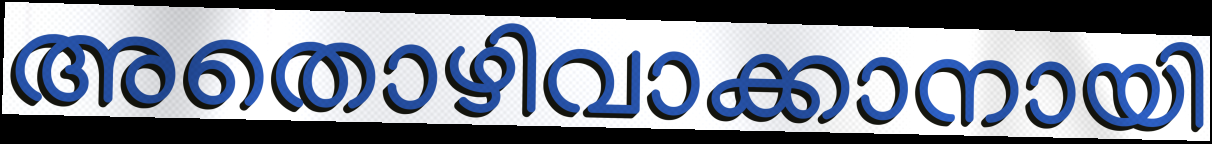
അതൊഴിവാക്കാനായി